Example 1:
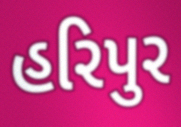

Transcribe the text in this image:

હરિપુર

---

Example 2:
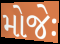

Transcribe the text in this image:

મોજેઃ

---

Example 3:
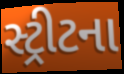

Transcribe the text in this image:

સ્ટ્રીટના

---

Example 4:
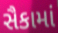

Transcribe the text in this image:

સૈકામાં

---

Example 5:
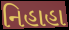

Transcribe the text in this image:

નિહાહા